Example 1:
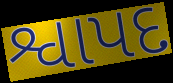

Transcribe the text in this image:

શ્વાપદ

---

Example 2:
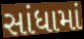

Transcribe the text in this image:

સાંધામાં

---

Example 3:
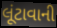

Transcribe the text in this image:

લૂંટાવાની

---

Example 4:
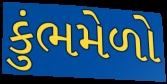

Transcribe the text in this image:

કુંભમેળો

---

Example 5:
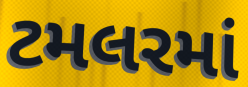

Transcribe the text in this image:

ટમલરમાં